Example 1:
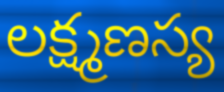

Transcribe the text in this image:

లక్ష్మణస్య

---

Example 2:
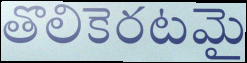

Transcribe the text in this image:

తొలికెరటమై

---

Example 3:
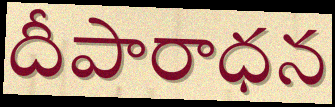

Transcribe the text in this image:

దీపారాధన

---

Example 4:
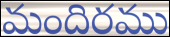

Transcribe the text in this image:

మందిరము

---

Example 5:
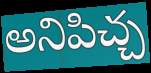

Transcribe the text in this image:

అనిపిచ్చ